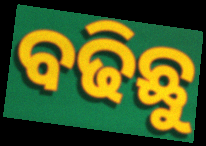
ବଢିଛୁ